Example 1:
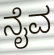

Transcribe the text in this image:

ನೈವ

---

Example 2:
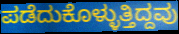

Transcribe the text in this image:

ಪಡೆದುಕೊಳ್ಳುತ್ತಿದ್ದವು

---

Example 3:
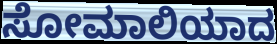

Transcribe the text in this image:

ಸೋಮಾಲಿಯಾದ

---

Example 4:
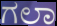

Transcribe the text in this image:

ಗಲಾ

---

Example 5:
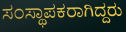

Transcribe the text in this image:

ಸಂಸ್ಥಾಪಕರಾಗಿದ್ದರು